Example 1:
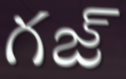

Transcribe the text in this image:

గజ్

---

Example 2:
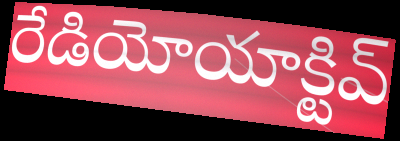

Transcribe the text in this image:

రేడియోయాక్టివ్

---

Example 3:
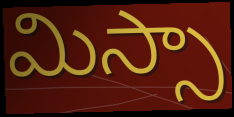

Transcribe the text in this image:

మిస్సా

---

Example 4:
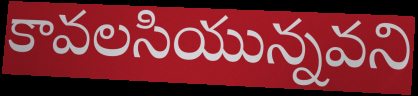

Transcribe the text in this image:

కావలసియున్నవని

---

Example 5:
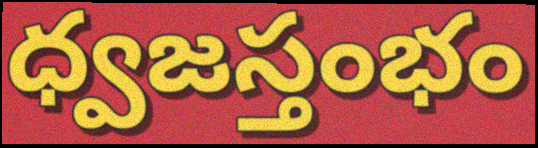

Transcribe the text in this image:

ధ్వజస్తంభం